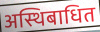
अस्थिबाधित